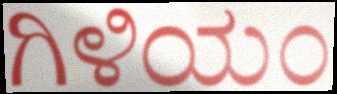
ಗಿಳಿಯಂ